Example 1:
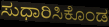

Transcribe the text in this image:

ಸುಧಾರಿಸಿಕೊಂಡ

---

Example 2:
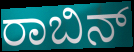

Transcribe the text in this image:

ರಾಬಿನ್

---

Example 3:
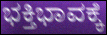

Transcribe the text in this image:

ಭಕ್ತಿಭಾವಕ್ಕೆ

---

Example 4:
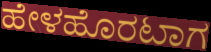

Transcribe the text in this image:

ಹೇಳಹೊರಟಾಗ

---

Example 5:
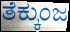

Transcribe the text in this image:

ತೆಕ್ಕುಂಜ